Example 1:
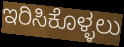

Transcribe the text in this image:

ಇರಿಸಿಕೊಳ್ಳಲು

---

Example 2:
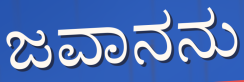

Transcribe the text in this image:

ಜವಾನನು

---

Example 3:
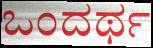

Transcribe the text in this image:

ಒಂದರ್ಥ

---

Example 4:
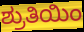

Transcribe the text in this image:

ಶ್ರುತಿಯಿಂ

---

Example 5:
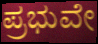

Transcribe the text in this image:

ಪ್ರಭುವೇ